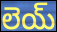
లెయ్